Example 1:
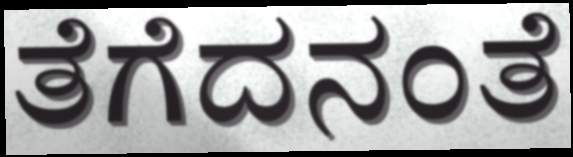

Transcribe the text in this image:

ತೆಗೆದನಂತೆ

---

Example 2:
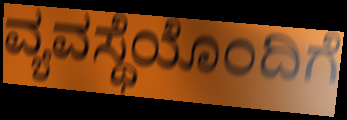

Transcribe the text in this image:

ವ್ಯವಸ್ಥೆಯೊಂದಿಗೆ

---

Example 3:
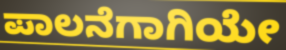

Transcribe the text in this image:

ಪಾಲನೆಗಾಗಿಯೇ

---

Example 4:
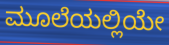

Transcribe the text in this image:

ಮೂಲೆಯಲ್ಲಿಯೇ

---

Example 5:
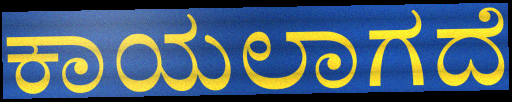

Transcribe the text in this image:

ಕಾಯಲಾಗದೆ